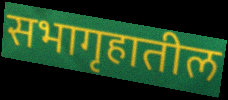
सभागृहातील